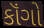
કૉંગો